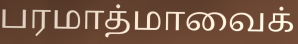
பரமாத்மாவைக்